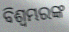
ବିଶ୍ୱମ୍ଭରଙ୍କ